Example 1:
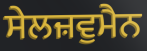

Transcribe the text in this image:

ਸੇਲਜ਼ਵੁਮੈਨ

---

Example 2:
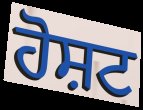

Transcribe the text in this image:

ਹੋਸ਼ਟ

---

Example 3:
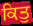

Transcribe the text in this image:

ਕਿਤੁ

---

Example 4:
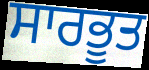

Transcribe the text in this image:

ਸਾਰਭੂਤ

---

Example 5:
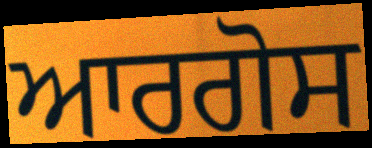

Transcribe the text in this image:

ਆਰਗੋਸ